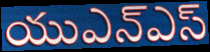
యుఎన్ఎస్